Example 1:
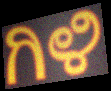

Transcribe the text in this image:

ಗಿಳಿ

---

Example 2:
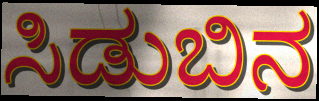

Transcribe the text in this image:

ಸಿಡುಬಿನ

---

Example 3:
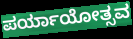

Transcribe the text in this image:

ಪರ್ಯಾಯೋತ್ಸವ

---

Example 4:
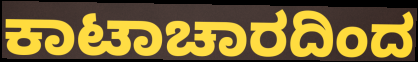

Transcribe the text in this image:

ಕಾಟಾಚಾರದಿಂದ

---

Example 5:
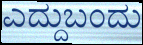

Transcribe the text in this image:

ಎದ್ದುಬಂದು